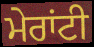
ਮੇਰਾਂਟੀ